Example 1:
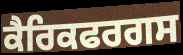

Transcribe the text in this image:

ਕੈਰਿਕਫਰਗਸ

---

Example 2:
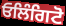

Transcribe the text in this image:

ਓਲਿੰਗਿਟੋ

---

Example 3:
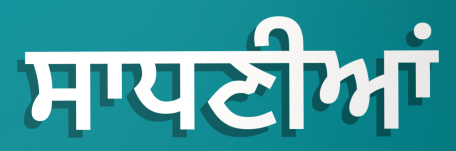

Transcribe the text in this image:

ਸਾਧਣੀਆਂ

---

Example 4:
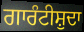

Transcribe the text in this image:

ਗਾਰੰਟੀਸ਼ੁਦਾ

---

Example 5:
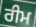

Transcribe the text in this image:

ਰੀਮ